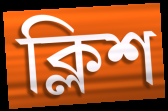
ক্লিশ